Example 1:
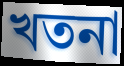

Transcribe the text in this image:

খতনা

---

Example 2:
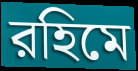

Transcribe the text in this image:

রহিমে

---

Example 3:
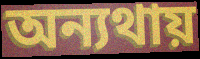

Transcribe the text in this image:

অন্যথায়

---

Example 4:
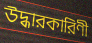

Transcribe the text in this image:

উদ্ধারকারিণী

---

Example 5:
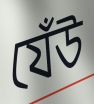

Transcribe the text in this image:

যেঁউ